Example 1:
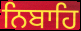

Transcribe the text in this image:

ਨਿਬਾਹਿ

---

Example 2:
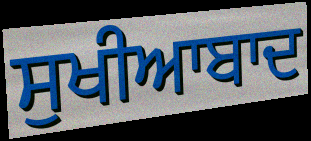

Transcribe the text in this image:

ਸੁਖੀਆਬਾਦ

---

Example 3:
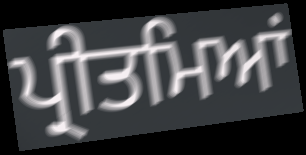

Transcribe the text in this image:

ਪ੍ਰੀਤਮਿਆਂ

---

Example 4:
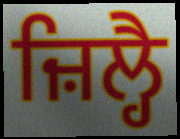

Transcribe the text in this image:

ਜ਼ਿਲ੍ਹੈ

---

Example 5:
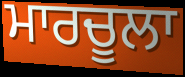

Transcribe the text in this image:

ਮਾਰਚੂਲਾ